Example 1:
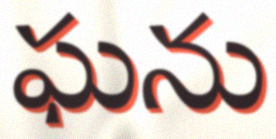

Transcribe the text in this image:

ఘను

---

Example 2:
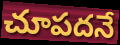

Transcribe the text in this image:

చూపదనే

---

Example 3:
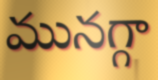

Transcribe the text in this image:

మునగ్గా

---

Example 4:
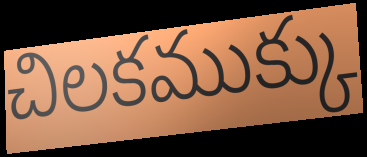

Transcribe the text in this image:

చిలకముక్కు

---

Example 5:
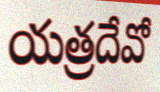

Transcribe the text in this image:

యత్రదేవో